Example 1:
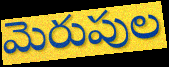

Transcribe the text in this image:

మెరుపుల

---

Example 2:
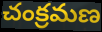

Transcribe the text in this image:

చంక్రమణ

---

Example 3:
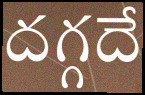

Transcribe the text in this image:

దగ్గదే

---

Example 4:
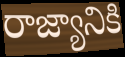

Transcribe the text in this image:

రాజ్యానికి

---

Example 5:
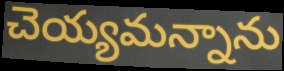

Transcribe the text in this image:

చెయ్యమన్నాను